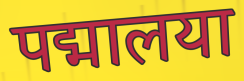
पद्मालया